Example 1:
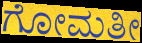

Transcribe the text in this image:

ಗೋಮತೀ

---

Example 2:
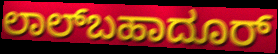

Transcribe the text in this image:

ಲಾಲ್‌ಬಹಾದೂರ್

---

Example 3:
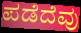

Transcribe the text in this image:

ಪಡೆದೆವು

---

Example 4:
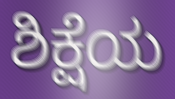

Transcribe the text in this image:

ಶಿಕ್ಷೆಯ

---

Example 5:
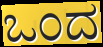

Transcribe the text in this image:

ಒಂದ